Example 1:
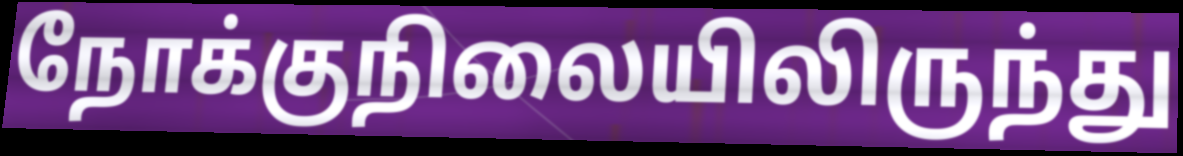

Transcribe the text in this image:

நோக்குநிலையிலிருந்து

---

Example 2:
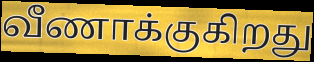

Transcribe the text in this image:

வீணாக்குகிறது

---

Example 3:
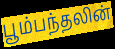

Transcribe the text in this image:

பூம்பந்தலின்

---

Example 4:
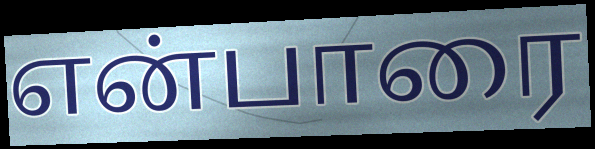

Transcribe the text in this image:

என்பாரை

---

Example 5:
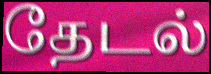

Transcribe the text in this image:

தேடல்